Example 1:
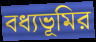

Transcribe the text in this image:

বধ্যভূমির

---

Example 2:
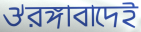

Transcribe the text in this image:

ঔরঙ্গাবাদেই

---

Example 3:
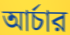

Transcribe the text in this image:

আর্চার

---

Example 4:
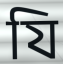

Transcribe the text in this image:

যি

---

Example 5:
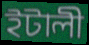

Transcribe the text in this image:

ইটালী